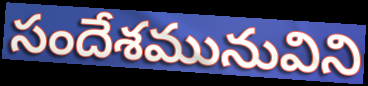
సందేశమునువిని